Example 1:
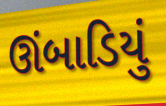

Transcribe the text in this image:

ઊંબાડિયું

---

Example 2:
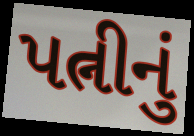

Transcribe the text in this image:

પત્નીનું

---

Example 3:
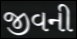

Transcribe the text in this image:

જીવની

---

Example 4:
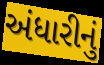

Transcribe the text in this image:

અંધારીનું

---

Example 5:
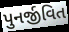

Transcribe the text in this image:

પુનર્જીવિત